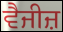
ਵੈਜੀਜ਼